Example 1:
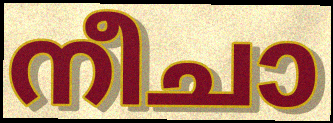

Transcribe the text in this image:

നീചാ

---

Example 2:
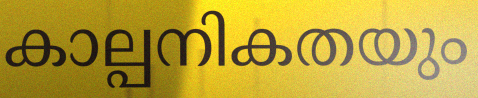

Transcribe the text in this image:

കാല്പനികതയും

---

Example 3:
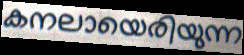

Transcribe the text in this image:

കനലായെരിയുന്ന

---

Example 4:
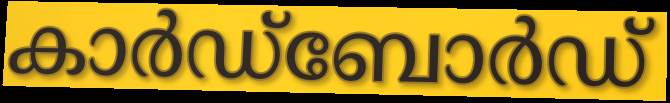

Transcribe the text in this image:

കാർഡ്ബോർഡ്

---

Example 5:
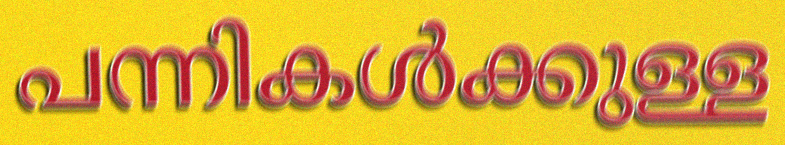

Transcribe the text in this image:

പന്നികൾക്കുള്ള